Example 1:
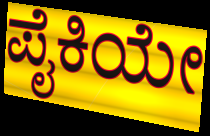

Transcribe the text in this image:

ಪೈಕಿಯೇ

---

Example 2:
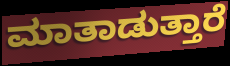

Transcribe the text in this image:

ಮಾತಾಡುತ್ತಾರೆ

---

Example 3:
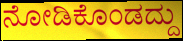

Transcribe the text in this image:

ನೋಡಿಕೊಂಡದ್ದು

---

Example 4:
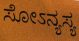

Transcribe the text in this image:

ಸೋಽನ್ಯಸ್ಯ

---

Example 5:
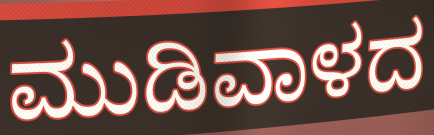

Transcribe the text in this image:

ಮುಡಿವಾಳದ